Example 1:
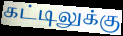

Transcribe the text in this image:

கட்டிலுக்கு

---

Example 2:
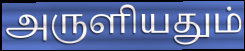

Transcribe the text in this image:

அருளியதும்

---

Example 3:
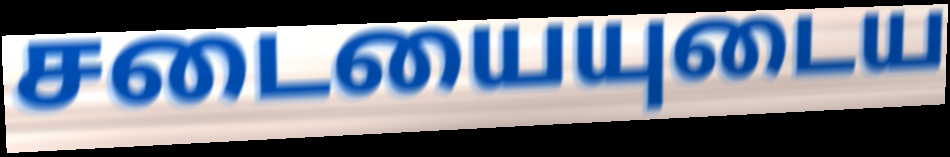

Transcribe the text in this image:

சடையையுடைய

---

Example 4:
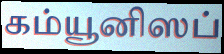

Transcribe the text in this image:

கம்யூனிஸப்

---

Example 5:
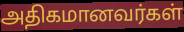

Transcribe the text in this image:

அதிகமானவர்கள்